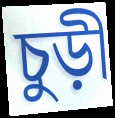
চুড়ী